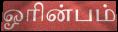
ஓரின்பம்